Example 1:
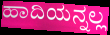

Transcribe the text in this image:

ಹಾದಿಯನ್ನಲ್ಲ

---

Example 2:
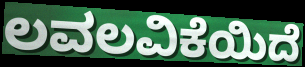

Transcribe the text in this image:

ಲವಲವಿಕೆಯಿದೆ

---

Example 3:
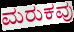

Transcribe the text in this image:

ಮರುಕವು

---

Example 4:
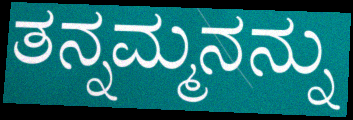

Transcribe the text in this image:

ತನ್ನಮ್ಮನನ್ನು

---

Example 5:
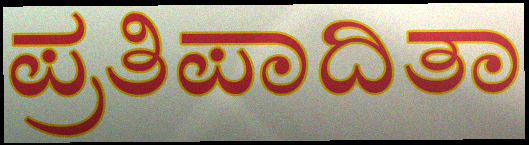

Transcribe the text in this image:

ಪ್ರತಿಪಾದಿತಾ